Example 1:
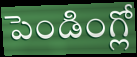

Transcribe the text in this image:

పెండింగ్లో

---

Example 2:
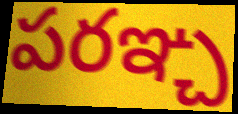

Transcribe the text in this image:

పరఞ్చ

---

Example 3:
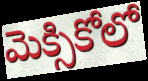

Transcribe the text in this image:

మెక్సికోలో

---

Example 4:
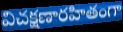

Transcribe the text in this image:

విచక్షణారహితంగా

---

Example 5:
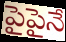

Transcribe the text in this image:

పైపైనే